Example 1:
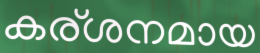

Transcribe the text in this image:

കര്ശനമായ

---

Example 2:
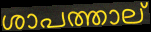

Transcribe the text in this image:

ശാപത്താല്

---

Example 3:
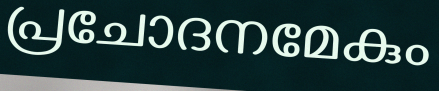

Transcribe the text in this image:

പ്രചോദനമേകും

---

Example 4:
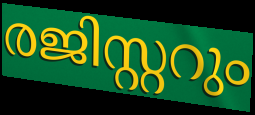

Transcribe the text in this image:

രജിസ്റ്ററും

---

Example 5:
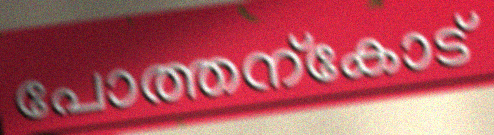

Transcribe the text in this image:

പോത്തന്കോട്